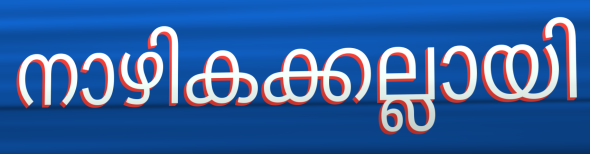
നാഴികക്കല്ലായി